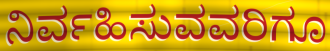
ನಿರ್ವಹಿಸುವವರಿಗೂ